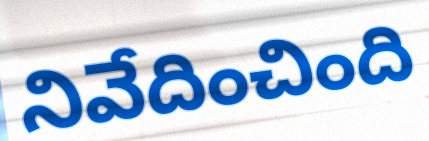
నివేదించింది